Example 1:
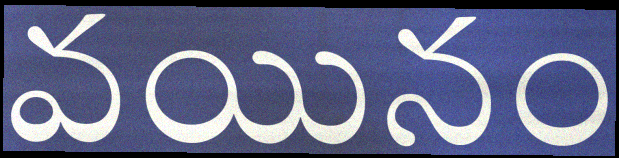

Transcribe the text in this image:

వయినం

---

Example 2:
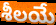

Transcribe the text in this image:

శీలయే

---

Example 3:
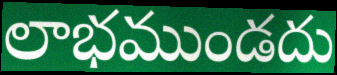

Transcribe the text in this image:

లాభముండదు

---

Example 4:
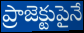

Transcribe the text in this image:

ప్రాజెక్టుపైనే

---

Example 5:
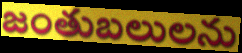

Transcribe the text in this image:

జంతుబలులను